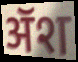
ॲश